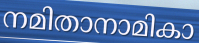
നമിതാനാമികാ